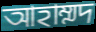
আহাম্মদ